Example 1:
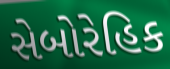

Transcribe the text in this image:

સેબોરેહિક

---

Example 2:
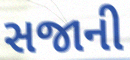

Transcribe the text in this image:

સજાની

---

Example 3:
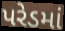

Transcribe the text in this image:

પરેડમાં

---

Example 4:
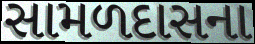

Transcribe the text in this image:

સામળદાસના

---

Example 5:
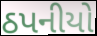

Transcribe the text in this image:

ઠપનીયો